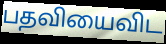
பதவியைவிட